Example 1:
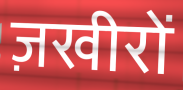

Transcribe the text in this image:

ज़खीरों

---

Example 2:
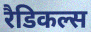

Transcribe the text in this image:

रैडिकल्स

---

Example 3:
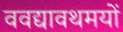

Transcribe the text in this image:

ववद्यावथमयों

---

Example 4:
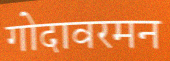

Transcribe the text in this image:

गोदावरमन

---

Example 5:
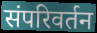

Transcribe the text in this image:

संपरिवर्तन